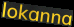
lokanna